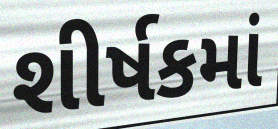
શીર્ષકમાં